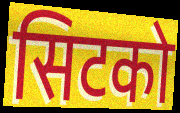
सिटको